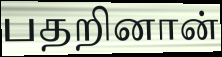
பதறினான்